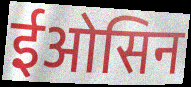
ईओसिन